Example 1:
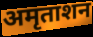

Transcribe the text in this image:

अमृताशन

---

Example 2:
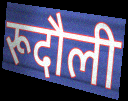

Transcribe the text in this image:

रूदौली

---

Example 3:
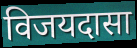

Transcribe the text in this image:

विजयदासा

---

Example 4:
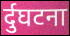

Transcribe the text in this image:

र्दुघटना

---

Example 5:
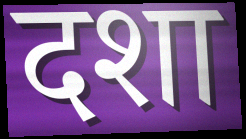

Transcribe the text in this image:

दशा